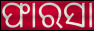
ଫାରସା